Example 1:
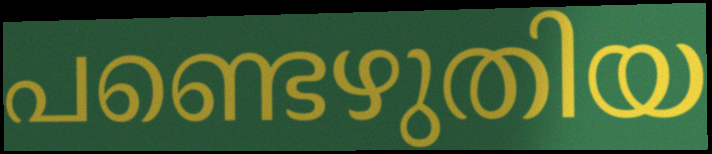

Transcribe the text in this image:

പണ്ടെഴുതിയ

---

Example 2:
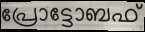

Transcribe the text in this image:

പ്രോട്ടോബഫ്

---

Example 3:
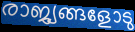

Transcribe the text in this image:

രാജ്യങ്ങളോടു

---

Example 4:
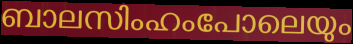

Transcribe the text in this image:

ബാലസിംഹംപോലെയും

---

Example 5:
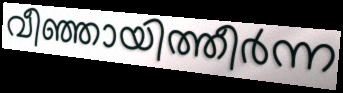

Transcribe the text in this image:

വീഞ്ഞായിത്തീർന്ന